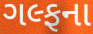
ગલ્ફના